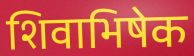
शिवाभिषेक